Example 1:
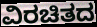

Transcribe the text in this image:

ವಿರಚಿತದ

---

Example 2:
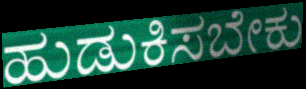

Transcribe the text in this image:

ಹುಡುಕಿಸಬೇಕು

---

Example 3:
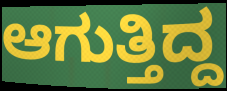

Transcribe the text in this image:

ಆಗುತ್ತಿದ್ದ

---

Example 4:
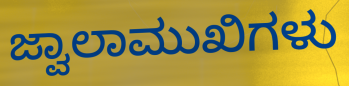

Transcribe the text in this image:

ಜ್ವಾಲಾಮುಖಿಗಳು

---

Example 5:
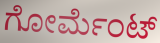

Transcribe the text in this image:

ಗೋರ್ಮೆಂಟ್